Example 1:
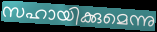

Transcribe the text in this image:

സഹായിക്കുമെന്നു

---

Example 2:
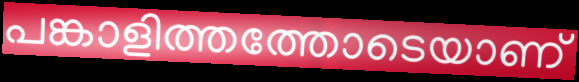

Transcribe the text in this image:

പങ്കാളിത്തത്തോടെയാണ്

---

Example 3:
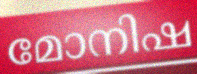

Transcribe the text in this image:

മോനിഷ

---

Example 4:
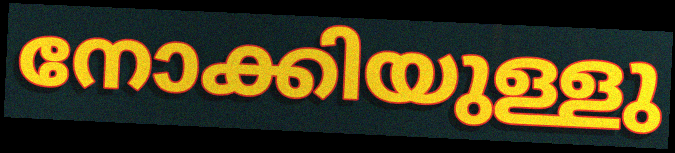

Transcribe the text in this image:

നോക്കിയുള്ളു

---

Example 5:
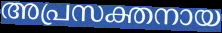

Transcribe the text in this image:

അപ്രസക്തനായ